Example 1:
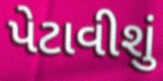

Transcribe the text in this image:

પેટાવીશું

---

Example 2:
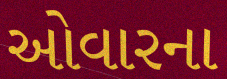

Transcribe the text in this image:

ઓવારના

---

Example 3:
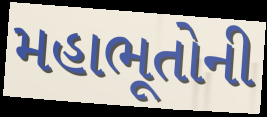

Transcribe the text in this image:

મહાભૂતોની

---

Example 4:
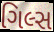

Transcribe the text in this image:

ગિલ્સ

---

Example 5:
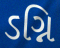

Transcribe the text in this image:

ઽગ્નિ